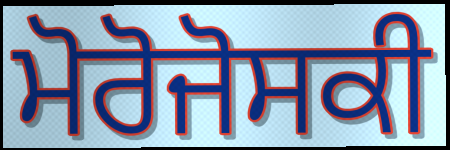
ਮੋਰੋਜੋਸਕੀ